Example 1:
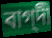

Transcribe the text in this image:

বাগ্‌দী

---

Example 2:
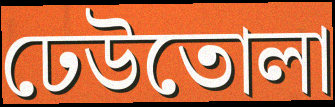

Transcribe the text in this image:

ঢেউতোলা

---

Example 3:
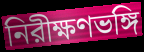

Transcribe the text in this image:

নিরীক্ষণভঙ্গি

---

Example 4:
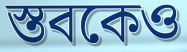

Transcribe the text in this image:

স্তবকেও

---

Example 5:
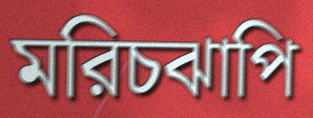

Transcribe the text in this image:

মরিচঝাপি